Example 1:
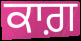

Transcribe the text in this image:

ਕਾਗ਼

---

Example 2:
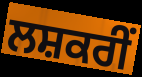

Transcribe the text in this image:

ਲਸ਼ਕਰੀਂ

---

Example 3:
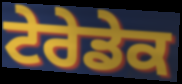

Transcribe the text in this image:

ਟੇਰੇਡੇਕ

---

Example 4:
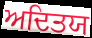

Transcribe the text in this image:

ਅਦਿਤਯ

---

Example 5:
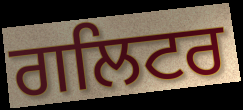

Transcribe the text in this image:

ਗਲਿਟਰ